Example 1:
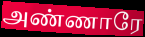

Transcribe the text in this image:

அண்ணாரே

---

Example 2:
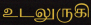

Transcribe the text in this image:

உடலுருகி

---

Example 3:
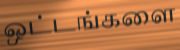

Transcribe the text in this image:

ஒட்டங்களை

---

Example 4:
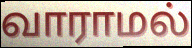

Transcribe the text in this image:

வாராமல்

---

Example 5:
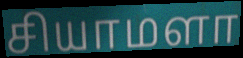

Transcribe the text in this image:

சியாமளா